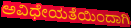
ಅವಿಧೇಯತೆಯಿಂದಾಗಿ